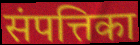
संपत्तिका